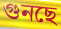
গুনছে